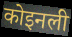
कोइनली